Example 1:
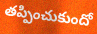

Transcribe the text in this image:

తప్పించుకుందో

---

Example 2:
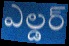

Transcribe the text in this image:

ఎల్డర్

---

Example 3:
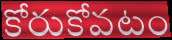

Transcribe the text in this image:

కోరుకోవటం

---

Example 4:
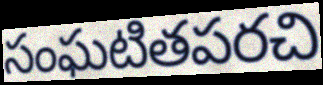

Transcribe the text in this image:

సంఘటితపరచి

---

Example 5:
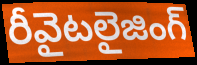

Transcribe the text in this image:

రీవైటలైజింగ్